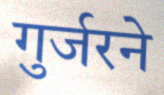
गुर्जरने